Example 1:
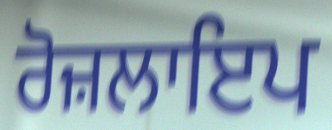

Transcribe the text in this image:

ਰੋਜ਼ਲਾਇਪ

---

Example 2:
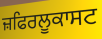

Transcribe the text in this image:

ਜ਼ਫਿਰਲੂਕਾਸਟ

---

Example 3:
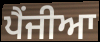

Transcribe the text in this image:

ਪੈਂਜੀਆ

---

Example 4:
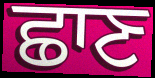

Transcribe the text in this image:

ਛਾਣ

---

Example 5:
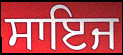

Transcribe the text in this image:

ਸਾਇਜ